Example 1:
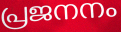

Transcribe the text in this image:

പ്രജനനം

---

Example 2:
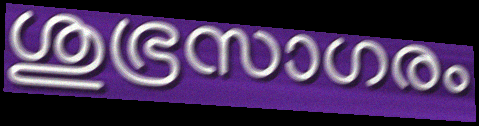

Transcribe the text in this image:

ശുഭ്രസാഗരം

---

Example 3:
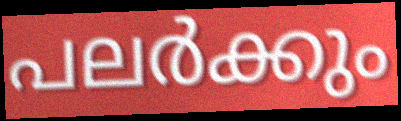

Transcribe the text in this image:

പലർക്കും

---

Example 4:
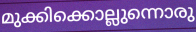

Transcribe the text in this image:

മുക്കിക്കൊല്ലുന്നൊരു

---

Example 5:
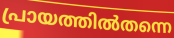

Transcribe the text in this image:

പ്രായത്തിൽതന്നെ